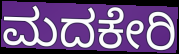
ಮದಕೇರಿ